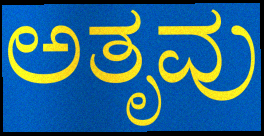
ಅತೃವು